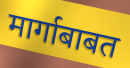
मार्गाबाबत